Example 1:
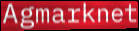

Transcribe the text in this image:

Agmarknet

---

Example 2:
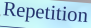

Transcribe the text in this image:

Repetition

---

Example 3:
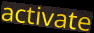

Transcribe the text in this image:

activate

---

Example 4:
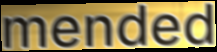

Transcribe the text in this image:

mended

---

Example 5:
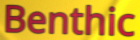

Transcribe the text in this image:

Benthic